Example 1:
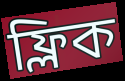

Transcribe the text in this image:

ফ্লিক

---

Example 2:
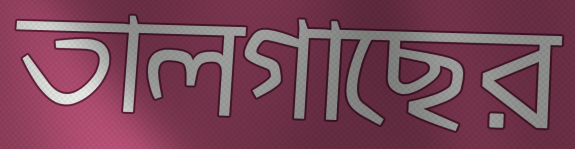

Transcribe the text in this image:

তালগাছের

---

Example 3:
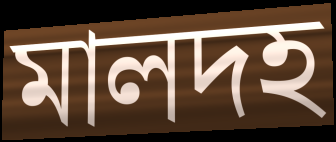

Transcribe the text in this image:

মালদহ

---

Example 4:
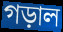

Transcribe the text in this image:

গড়াল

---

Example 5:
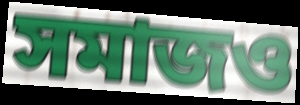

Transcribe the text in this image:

সমাজও